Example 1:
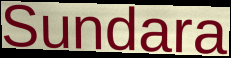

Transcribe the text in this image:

Sundara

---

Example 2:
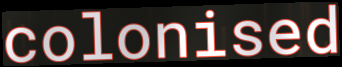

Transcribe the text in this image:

colonised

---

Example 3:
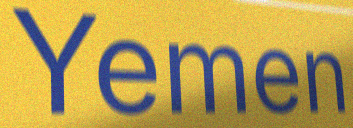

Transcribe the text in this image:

Yemen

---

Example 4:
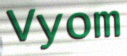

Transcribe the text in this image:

Vyom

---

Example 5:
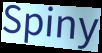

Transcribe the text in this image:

Spiny